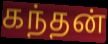
கந்தன்